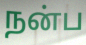
நன்ப